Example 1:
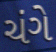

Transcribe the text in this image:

ચંગે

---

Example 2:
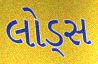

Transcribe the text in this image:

લોડ્સ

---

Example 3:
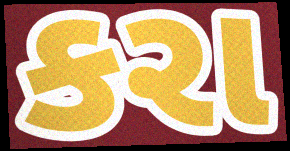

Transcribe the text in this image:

કરા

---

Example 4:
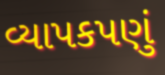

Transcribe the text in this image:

વ્યાપકપણું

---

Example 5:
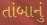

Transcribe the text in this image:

તાંબાનું